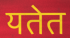
यतेत